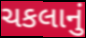
ચકલાનું